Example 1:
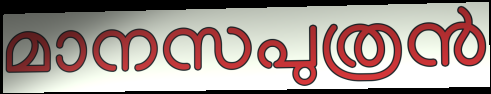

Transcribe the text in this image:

മാനസപുത്രൻ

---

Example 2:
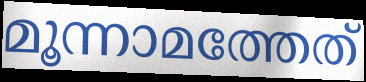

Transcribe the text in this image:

മൂന്നാമത്തേത്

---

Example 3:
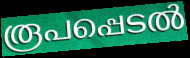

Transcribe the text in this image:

രൂപപ്പെടൽ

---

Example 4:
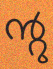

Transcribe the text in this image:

ന്റു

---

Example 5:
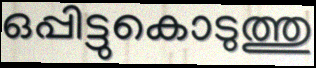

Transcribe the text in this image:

ഒപ്പിട്ടുകൊടുത്തു